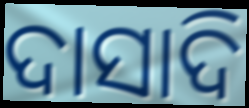
ଦାସାଦି